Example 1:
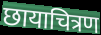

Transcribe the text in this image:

छायाचित्रण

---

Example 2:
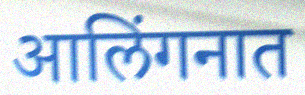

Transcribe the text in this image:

आलिंगनात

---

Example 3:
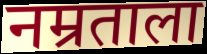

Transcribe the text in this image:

नम्रताला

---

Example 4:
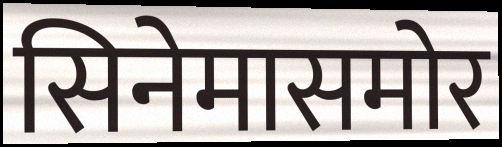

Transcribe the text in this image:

सिनेमासमोर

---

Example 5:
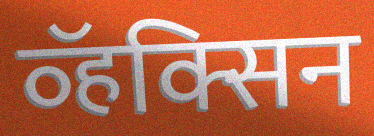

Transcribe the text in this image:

व्हॅक्सिन